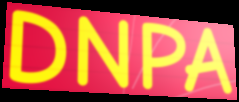
DNPA